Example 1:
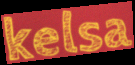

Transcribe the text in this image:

kelsa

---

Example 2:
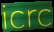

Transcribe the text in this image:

icrc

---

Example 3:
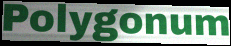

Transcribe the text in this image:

Polygonum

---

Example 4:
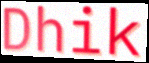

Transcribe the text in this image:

Dhik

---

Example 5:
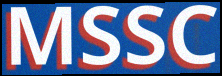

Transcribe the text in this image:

MSSC